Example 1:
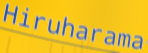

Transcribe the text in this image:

Hiruharama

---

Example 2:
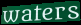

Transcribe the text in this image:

waters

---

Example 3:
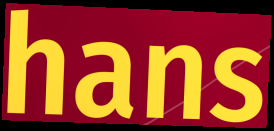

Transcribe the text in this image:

hans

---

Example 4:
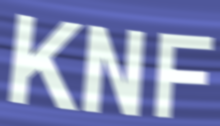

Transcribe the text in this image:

KNF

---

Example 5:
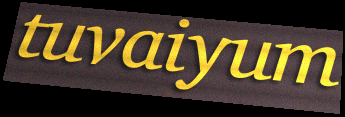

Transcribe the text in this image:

tuvaiyum